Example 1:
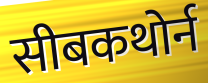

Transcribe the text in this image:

सीबकथोर्न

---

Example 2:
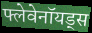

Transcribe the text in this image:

फ्लेवेनॉयड्स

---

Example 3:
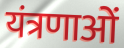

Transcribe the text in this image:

यंत्रणाओं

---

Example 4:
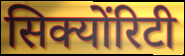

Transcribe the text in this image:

सिक्योंरिटी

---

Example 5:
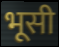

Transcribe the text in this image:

भूसी